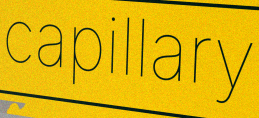
capillary